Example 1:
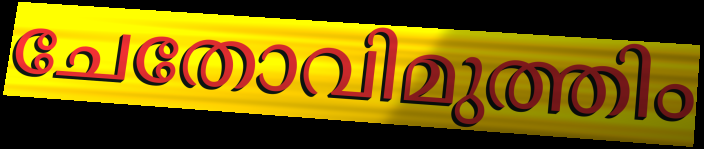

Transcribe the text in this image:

ചേതോവിമുത്തിം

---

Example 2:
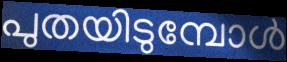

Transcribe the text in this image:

പുതയിടുമ്പോൾ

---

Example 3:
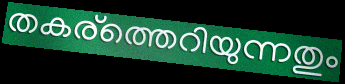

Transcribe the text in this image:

തകര്ത്തെറിയുന്നതും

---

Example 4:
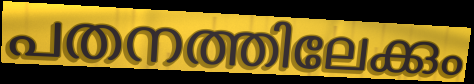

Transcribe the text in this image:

പതനത്തിലേക്കും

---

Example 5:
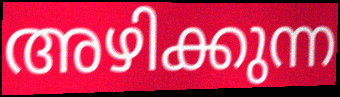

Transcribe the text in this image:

അഴിക്കുന്ന